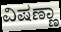
ವಿಷಣ್ಣಾ